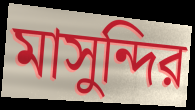
মাসুন্দির